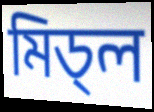
মিড্‌ল